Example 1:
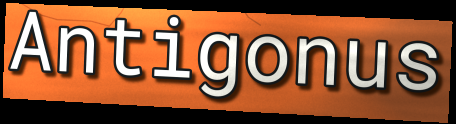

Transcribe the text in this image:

Antigonus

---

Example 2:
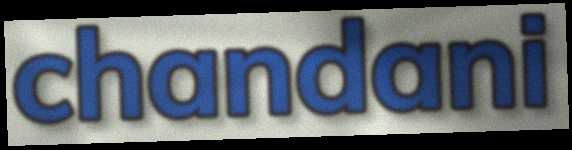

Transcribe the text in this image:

chandani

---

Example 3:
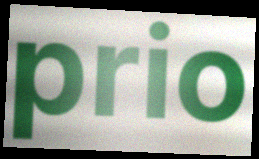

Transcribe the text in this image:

prio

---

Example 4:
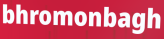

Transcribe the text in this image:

bhromonbagh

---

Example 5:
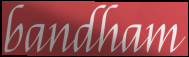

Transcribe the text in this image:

bandham